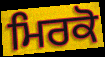
ਮਿਰਕੋ